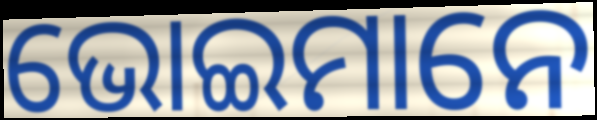
ଭୋଇମାନେ